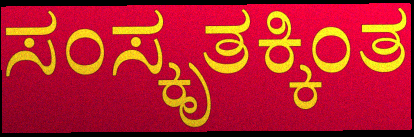
ಸಂಸ್ಕೃತಕ್ಕಿಂತ